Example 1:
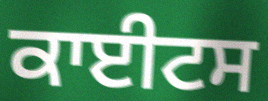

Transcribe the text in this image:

ਕਾਈਟਸ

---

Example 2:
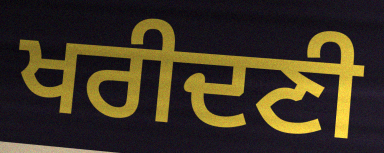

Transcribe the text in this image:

ਖਰੀਦਣੀ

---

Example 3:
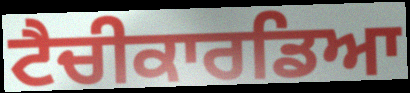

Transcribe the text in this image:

ਟੈਚੀਕਾਰਡਿਆ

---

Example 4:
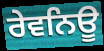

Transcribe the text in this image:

ਰੇਵਨਿਊ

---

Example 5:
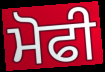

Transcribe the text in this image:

ਮੋਫੀ